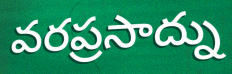
వరప్రసాద్ను